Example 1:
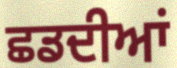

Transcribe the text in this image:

ਛਡਦੀਆਂ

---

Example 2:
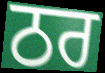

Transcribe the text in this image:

ਠਰ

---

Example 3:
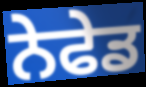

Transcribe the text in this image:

ਨੇਫੇਡ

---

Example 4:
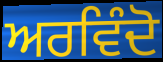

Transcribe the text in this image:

ਅਰਵਿੰਦੋ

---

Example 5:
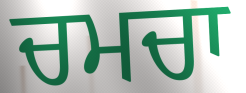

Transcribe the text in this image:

ਚਮਚਾ